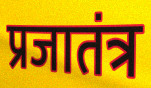
प्रजातंत्र